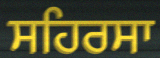
ਸਹਿਰਸਾ